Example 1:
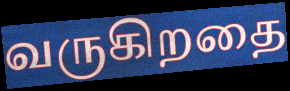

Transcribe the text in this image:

வருகிறதை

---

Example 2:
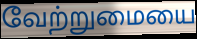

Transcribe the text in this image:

வேற்றுமையை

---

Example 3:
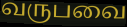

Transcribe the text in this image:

வருபவை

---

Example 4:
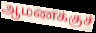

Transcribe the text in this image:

ஆமணக்குச்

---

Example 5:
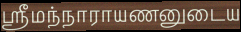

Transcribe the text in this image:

ஸ்ரீமந்நாராயணனுடைய